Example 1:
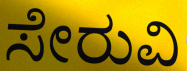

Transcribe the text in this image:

ಸೇರುವಿ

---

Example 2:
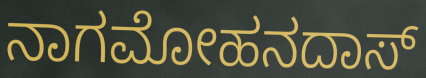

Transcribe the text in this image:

ನಾಗಮೋಹನದಾಸ್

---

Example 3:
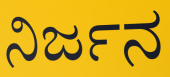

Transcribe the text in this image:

ನಿರ್ಜನ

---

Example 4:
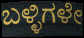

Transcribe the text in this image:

ಬಳ್ಳಿಗಳೇ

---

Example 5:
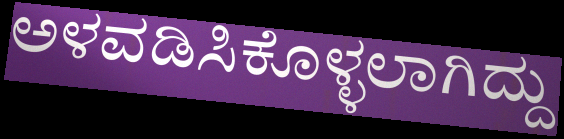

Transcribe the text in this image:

ಅಳವಡಿಸಿಕೊಳ್ಳಲಾಗಿದ್ದು